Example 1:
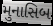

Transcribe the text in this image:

મુનાસિબ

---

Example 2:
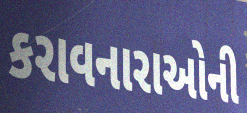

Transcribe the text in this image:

કરાવનારાઓની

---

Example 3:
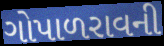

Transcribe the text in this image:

ગોપાળરાવની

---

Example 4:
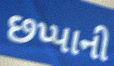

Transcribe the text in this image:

છપ્પાની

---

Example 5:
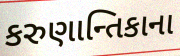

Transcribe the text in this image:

કરુણાન્તિકાના